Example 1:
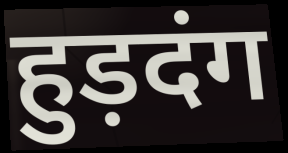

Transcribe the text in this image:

हुड़दंग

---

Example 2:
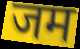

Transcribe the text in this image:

जम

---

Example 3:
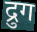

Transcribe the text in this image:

द्रुग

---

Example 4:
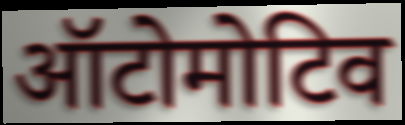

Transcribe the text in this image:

ऑटोमोटिव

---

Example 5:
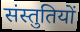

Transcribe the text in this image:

संस्तुतियों